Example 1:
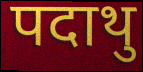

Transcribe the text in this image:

पदाथु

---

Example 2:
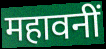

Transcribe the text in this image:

महावनीं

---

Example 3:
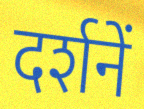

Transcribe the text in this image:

दर्शनें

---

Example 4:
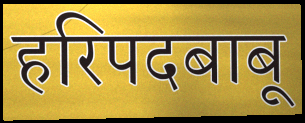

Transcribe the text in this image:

हरिपदबाबू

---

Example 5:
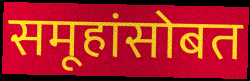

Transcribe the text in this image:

समूहांसोबत